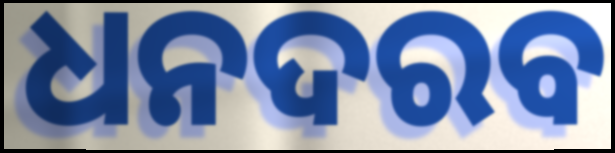
ଧନଦରବ